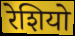
रेशियो